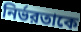
নির্ভরতাকে